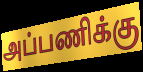
அப்பணிக்கு